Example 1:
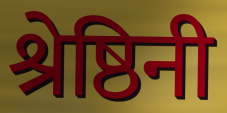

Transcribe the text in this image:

श्रेष्ठिनी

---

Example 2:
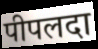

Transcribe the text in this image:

पीपलदा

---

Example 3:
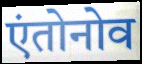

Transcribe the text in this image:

एंतोनोव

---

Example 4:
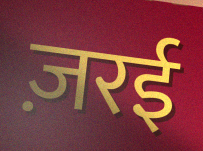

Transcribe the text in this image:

ज़रई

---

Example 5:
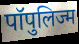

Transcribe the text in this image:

पॉपुलिज्म